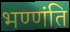
भण्णंति